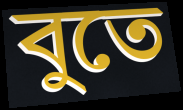
বুতে